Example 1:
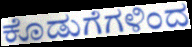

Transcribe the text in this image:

ಕೊಡುಗೆಗಳಿಂದ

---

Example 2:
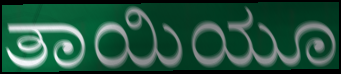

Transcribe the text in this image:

ತಾಯಿಯೂ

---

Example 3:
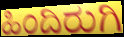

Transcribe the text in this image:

ಹಿಂದಿರುಗಿ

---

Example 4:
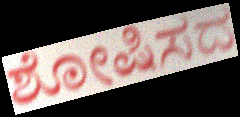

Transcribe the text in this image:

ಶೋಷಿಸದ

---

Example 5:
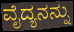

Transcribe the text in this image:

ವೈದ್ಯನನ್ನು